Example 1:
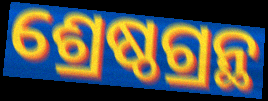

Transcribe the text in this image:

ଶ୍ରେଷ୍ଠଗ୍ରନ୍ଥ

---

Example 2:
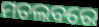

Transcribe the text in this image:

ମତଲବରେ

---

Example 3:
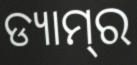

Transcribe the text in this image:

ଡ୍ୟାମ୍‍ର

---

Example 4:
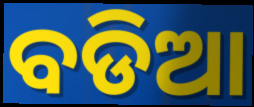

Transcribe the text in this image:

ବଡିଆ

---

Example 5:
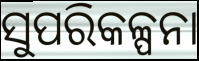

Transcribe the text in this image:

ସୁପରିକଳ୍ପନା